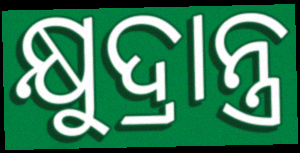
କ୍ଷୁଦ୍ରାନ୍ତ୍ର